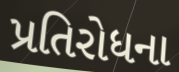
પ્રતિરોધના